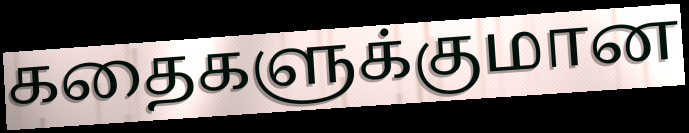
கதைகளுக்குமான